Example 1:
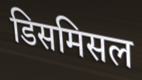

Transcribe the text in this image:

डिसमिसल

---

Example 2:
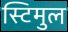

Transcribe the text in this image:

स्टिमुल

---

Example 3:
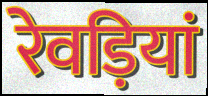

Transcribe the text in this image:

रेवड़ियां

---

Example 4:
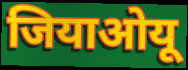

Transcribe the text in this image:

जियाओयू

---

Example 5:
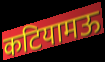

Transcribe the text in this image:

कटियामऊ